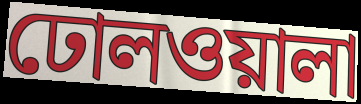
ঢোলওয়ালা